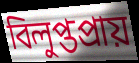
বিলুপ্তপ্ৰায়